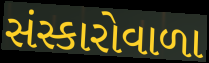
સંસ્કારોવાળા